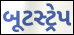
બૂટસ્ટ્રેપ